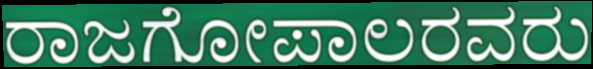
ರಾಜಗೋಪಾಲರವರು